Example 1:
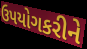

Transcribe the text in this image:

ઉપયોગકરીને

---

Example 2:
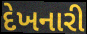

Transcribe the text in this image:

દેખનારી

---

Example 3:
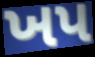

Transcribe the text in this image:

ખપ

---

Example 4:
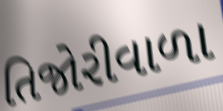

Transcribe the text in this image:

તિજોરીવાળા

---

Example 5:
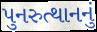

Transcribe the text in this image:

પુનરુત્થાનનું